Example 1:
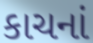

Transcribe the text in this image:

કાચનાં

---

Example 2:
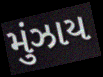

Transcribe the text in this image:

મુંઝાય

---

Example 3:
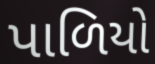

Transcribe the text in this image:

પાળિયો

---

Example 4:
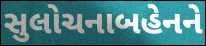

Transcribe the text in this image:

સુલોચનાબહેનને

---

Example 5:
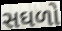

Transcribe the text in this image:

સઘળો